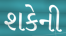
શકેની